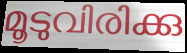
മൂടുവിരിക്കു